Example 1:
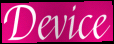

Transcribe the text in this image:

Device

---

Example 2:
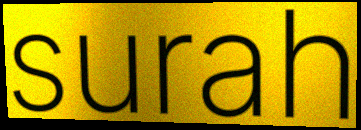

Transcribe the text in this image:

surah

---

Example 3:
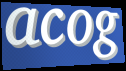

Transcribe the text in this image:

acog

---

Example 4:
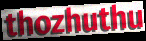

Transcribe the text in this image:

thozhuthu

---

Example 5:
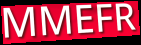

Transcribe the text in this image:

MMEFR